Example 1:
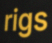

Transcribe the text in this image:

rigs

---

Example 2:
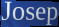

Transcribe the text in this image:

Josep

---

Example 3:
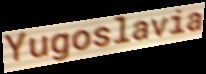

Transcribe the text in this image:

Yugoslavia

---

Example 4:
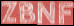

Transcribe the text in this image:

ZBNF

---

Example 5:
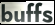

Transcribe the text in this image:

buffs